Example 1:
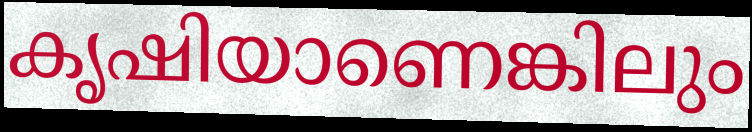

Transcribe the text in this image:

കൃഷിയാണെങ്കിലും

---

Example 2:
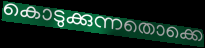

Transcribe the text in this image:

കൊടുക്കുന്നതൊക്കെ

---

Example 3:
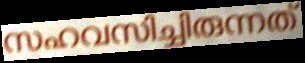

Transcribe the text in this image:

സഹവസിച്ചിരുന്നത്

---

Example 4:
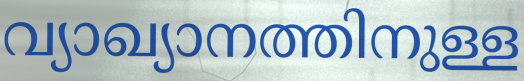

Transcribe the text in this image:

വ്യാഖ്യാനത്തിനുള്ള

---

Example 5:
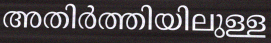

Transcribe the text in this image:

അതിർത്തിയിലുള്ള